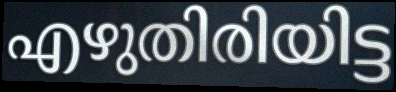
എഴുതിരിയിട്ട